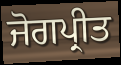
ਜੋਗਪ੍ਰੀਤ